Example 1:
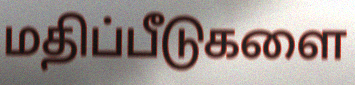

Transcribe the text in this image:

மதிப்பீடுகளை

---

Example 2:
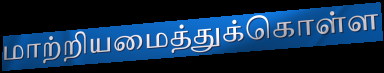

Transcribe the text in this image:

மாற்றியமைத்துக்கொள்ள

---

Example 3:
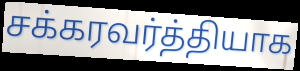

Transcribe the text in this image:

சக்கரவர்த்தியாக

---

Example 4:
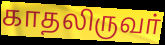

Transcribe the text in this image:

காதலிருவர்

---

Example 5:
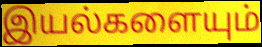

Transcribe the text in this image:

இயல்களையும்